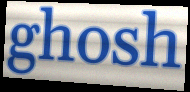
ghosh